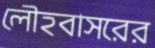
লৌহবাসরের